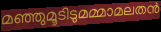
മഞ്ഞുമൂടിടുമമ്മാമലതൻ